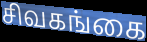
சிவகங்கை